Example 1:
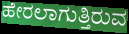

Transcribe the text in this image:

ಹೇರಲಾಗುತ್ತಿರುವ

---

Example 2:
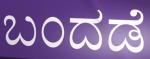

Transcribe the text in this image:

ಬಂದಡೆ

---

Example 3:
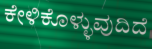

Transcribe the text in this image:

ಕೇಳಿಕೊಳ್ಳುವುದಿದೆ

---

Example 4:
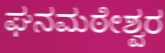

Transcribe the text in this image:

ಘನಮಠೇಶ್ವರ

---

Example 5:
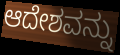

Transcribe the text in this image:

ಆದೇಶವನ್ನು